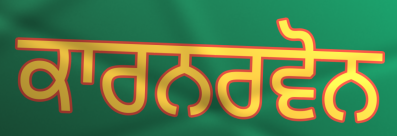
ਕਾਰਨਰਵੋਨ